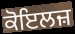
ਕੋਇਲਜ਼